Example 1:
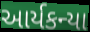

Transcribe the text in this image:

આર્યકન્યા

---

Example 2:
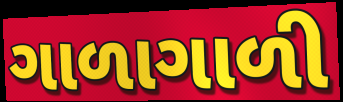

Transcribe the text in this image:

ગાળાગાળી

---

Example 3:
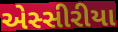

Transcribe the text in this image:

એસ્સીરીયા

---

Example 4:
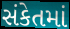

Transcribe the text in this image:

સંકેતમાં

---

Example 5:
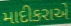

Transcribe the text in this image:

માદીકરાએ